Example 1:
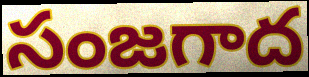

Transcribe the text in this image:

సంజగాద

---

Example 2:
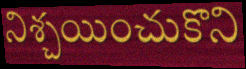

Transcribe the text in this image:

నిశ్చయించుకొని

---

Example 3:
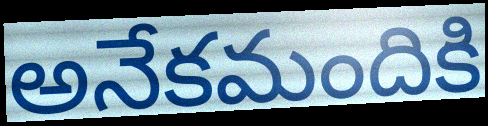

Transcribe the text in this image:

అనేకమందికి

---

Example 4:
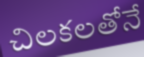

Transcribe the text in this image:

చిలకలతోనే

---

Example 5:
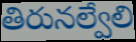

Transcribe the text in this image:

తిరునల్వేలి